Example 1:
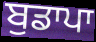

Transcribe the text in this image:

ਬੁਡਾਪਾ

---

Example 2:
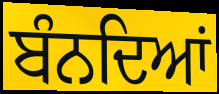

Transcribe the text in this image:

ਬੰਨਦਿਆਂ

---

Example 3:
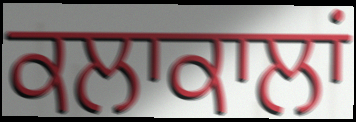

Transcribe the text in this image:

ਕਲਾਕਾਲਾਂ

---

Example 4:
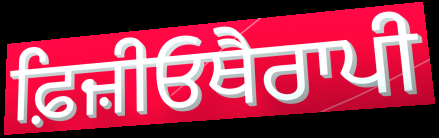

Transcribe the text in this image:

ਫ਼ਿਜ਼ੀਓਥੈਰਾਪੀ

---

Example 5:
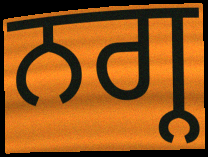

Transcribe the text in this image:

ਨਗ੍ਨ